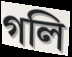
গলি